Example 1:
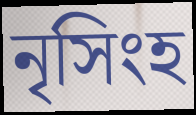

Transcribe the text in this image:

নৃসিংহ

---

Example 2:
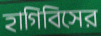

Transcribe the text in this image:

হাগিবিসের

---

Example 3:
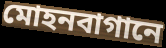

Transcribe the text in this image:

মোহনবাগানে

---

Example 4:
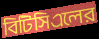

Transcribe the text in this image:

বিটিসিএলের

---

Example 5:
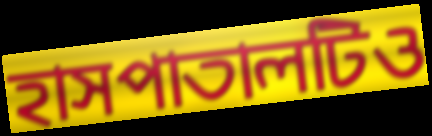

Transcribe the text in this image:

হাসপাতালটিও